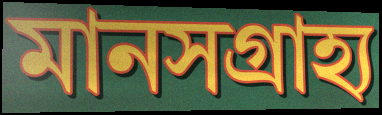
মানসগ্রাহ্য